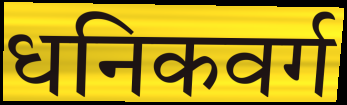
धनिकवर्ग